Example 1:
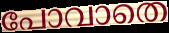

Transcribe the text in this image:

പോവാതെ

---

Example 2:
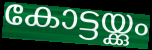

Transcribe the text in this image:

കോട്ടയ്ക്കും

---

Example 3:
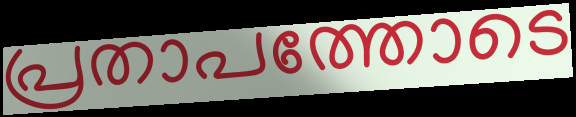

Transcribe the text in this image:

പ്രതാപത്തോടെ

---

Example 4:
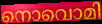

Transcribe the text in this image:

നൊവൊമി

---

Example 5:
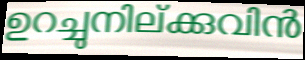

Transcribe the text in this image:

ഉറച്ചുനില്ക്കുവിൻ